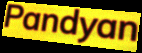
Pandyan